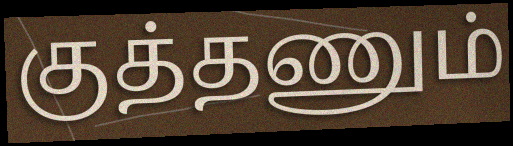
குத்தணும்